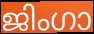
ജിംഗാ